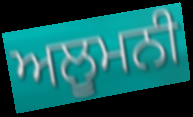
ਅਲੂਮਨੀ